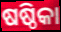
ଷଷ୍ଠିକା